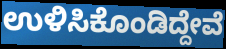
ಉಳಿಸಿಕೊಂಡಿದ್ದೇವೆ